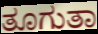
ತೂಗುತಾ